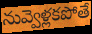
నువ్వెళ్లకపోతే